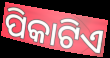
ପିକାଟିଏ